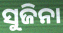
ସୁଜିନା